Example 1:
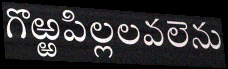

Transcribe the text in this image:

గొఱ్ఱపిల్లలవలెను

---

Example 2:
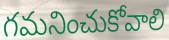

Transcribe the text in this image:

గమనించుకోవాలి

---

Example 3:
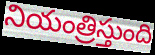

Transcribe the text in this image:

నియంత్రిస్తుంది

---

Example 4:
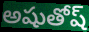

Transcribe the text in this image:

అషుతోష్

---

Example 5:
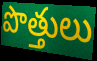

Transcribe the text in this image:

పొత్తులు